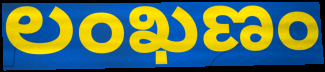
లంఖణం